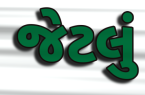
જેટલું